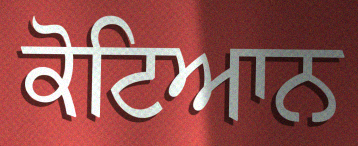
ਕੋਟਿਆਨ